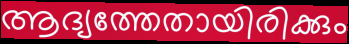
ആദ്യത്തേതായിരിക്കും